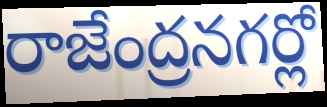
రాజేంద్రనగర్లో